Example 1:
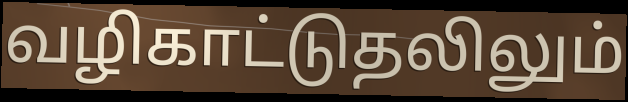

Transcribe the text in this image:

வழிகாட்டுதலிலும்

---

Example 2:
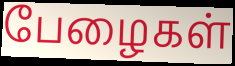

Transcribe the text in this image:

பேழைகள்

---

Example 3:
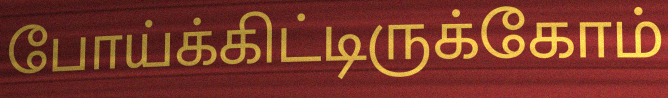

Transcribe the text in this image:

போய்க்கிட்டிருக்கோம்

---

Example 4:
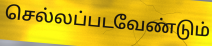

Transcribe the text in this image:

செல்லப்படவேண்டும்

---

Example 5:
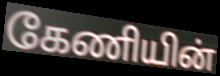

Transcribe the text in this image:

கேணியின்